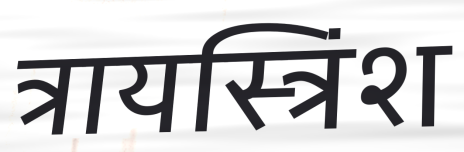
त्रायस्त्रिंश